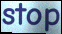
stop